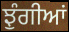
ਝੁੰਗੀਆਂ